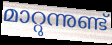
മാറ്റുന്നുണ്ട്